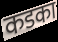
कडका